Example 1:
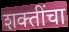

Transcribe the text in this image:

शक्तींचा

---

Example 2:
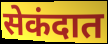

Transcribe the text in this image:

सेकंदात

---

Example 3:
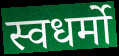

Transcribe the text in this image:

स्वधर्मो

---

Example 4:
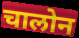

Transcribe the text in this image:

चालोन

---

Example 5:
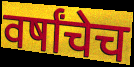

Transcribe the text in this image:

वर्षांचेच